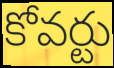
కోవర్టు